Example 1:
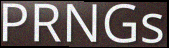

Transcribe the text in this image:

PRNGs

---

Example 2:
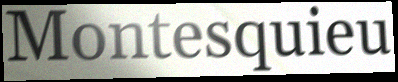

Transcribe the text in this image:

Montesquieu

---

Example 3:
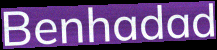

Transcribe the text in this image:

Benhadad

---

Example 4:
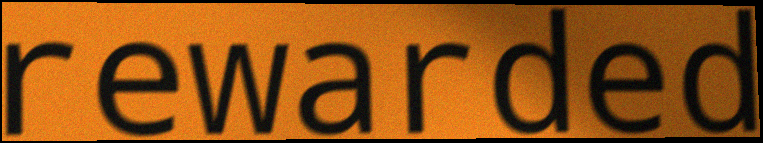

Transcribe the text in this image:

rewarded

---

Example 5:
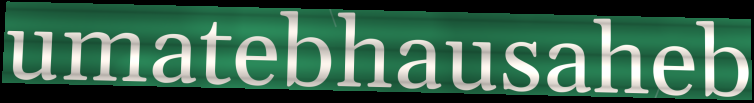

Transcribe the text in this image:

umatebhausaheb